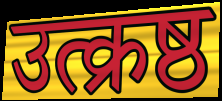
उत्क्रष्ठ